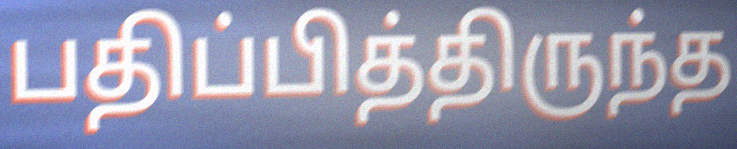
பதிப்பித்திருந்த